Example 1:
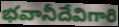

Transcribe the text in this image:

భవానీదేవిగారి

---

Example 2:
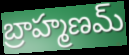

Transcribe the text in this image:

బ్రాహ్మణమ్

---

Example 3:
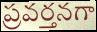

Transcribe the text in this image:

ప్రవర్తనగా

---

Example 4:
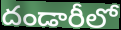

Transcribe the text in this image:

దండారీలో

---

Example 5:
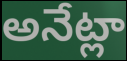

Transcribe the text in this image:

అనేట్లా